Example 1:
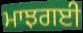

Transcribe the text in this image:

ਮਾਝਗਈ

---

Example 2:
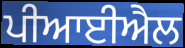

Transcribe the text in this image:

ਪੀਆਈਐਲ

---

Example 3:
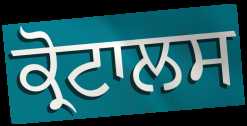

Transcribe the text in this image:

ਕ੍ਰੋਟਾਲਸ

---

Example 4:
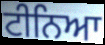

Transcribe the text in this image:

ਟੀਨਿਆ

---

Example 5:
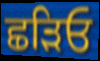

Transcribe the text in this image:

ਛੜਿਓ